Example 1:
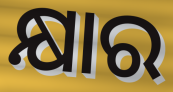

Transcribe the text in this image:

କ୍ଷାର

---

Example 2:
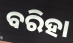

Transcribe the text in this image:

ବରିହା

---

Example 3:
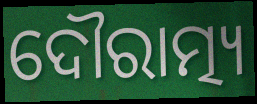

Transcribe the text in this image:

ଦୌରାତ୍ମ୍ୟ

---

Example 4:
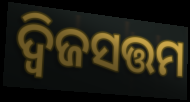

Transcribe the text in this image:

ଦ୍ୱିଜସତ୍ତମ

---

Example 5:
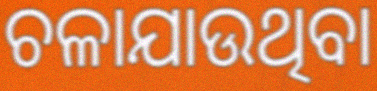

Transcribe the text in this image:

ଚଳାଯାଉଥିବା